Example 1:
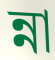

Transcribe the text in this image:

ন্না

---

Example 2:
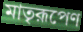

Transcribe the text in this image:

মাতৃরূপেণ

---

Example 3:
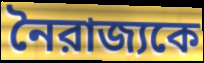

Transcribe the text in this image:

নৈরাজ্যকে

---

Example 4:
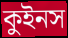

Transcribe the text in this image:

কুইনস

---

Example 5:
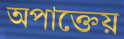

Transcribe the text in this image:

অপাক্তেয়